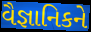
વૈજ્ઞાનિકને